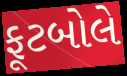
ફૂટબોલે